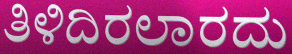
ತಿಳಿದಿರಲಾರದು